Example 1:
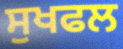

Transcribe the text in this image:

ਸੁਖਫਲ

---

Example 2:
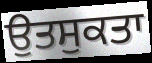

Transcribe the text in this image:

ਉਤਸੁਕਤਾ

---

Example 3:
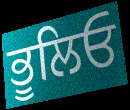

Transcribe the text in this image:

ਭੂਲਿਓ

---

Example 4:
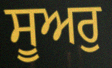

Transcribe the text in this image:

ਸੂਅਰੁ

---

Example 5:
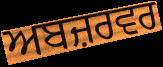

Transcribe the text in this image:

ਅਬਜ਼ਰਵਰ